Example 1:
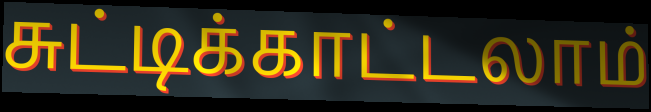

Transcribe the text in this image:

சுட்டிக்காட்டலாம்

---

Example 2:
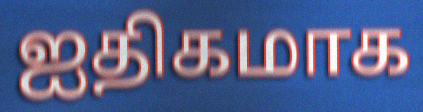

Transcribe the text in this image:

ஐதிகமாக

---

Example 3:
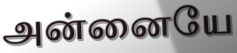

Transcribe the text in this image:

அன்னையே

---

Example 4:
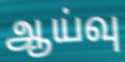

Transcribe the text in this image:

ஆய்வு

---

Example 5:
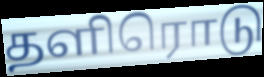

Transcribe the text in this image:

தளிரொடு